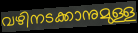
വഴിനടക്കാനുമുള്ള